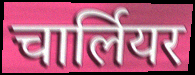
चार्लियर